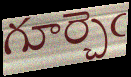
గూర్చెఁ